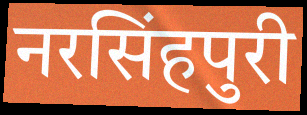
नरसिंहपुरी